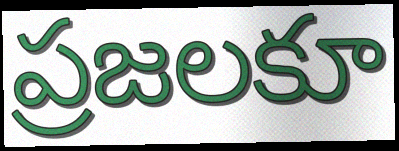
ప్రజలకూ